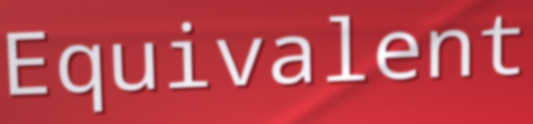
Equivalent